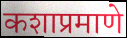
कशाप्रमाणे